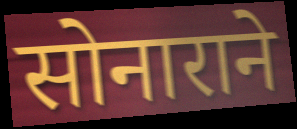
सोनाराने